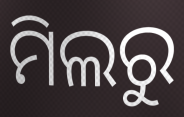
ମିଲରୁ